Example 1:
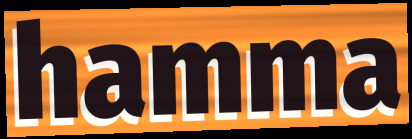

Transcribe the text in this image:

hamma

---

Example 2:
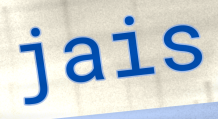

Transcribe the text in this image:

jais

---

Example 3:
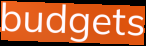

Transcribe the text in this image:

budgets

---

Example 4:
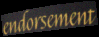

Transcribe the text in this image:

endorsement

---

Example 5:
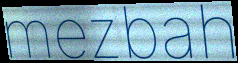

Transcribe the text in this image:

mezbah